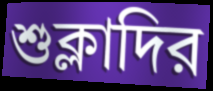
শুক্লাদির